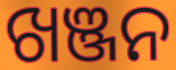
ଖଞ୍ଜନ